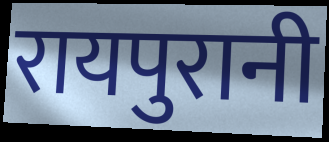
रायपुरानी